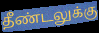
தீண்டலுக்கு